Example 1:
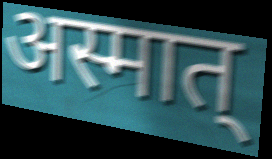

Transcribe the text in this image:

अस्मात्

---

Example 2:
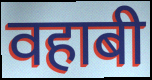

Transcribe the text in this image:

वहाबी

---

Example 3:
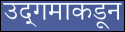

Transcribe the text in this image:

उद्‌गमाकडून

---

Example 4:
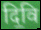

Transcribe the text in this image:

दि॒वि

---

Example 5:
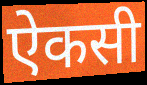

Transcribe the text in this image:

ऐकसी